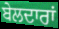
ਬੇਲਦਾਰਾਂ